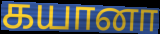
கயானா